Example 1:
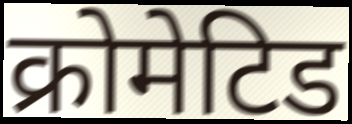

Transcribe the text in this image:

क्रोमेटिड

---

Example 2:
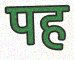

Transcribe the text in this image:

पह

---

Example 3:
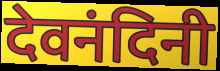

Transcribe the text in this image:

देवनंदिनी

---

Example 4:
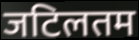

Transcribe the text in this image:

जटिलतम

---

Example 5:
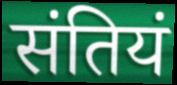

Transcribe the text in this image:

संतियं